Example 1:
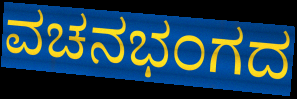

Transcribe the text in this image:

ವಚನಭಂಗದ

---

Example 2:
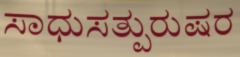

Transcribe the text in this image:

ಸಾಧುಸತ್ಪುರುಷರ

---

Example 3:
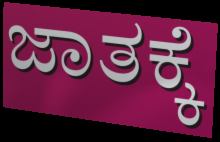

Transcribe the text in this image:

ಜಾತಕ್ಕೆ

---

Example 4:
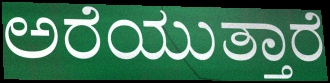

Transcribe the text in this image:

ಅರೆಯುತ್ತಾರೆ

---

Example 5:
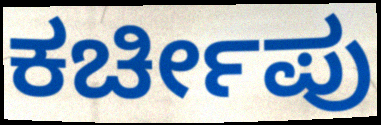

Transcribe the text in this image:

ಕರ್ಚೀಪು